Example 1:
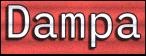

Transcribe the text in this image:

Dampa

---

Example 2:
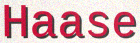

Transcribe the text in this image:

Haase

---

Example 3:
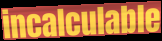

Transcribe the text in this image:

incalculable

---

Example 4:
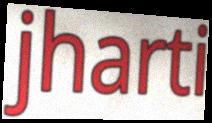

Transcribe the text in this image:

jharti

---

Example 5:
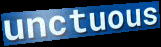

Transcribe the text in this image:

unctuous